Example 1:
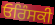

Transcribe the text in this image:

ਓਰਿੰਸਕੀ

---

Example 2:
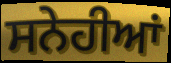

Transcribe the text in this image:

ਸਨੇਹੀਆਂ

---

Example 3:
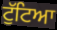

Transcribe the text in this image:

ਟੁੱਟਿਆ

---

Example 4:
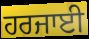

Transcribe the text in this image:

ਹਰਜਾਈ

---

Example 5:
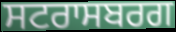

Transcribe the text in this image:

ਸਟਰਾਸਬਰਗ